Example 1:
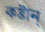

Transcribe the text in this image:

কষ্টান্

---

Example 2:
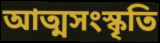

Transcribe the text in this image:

আত্মসংস্কৃতি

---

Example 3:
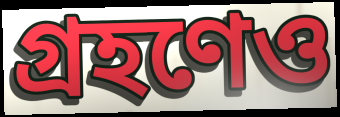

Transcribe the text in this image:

গ্রহণেও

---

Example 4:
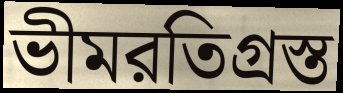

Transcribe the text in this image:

ভীমরতিগ্রস্ত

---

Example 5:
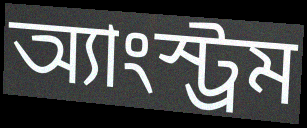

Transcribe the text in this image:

অ্যাংস্ট্রম